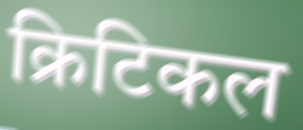
क्रिटिकल